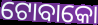
ଟୋବାକୋ